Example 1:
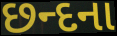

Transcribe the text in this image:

છન્દના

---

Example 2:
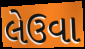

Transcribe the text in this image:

લેઉવા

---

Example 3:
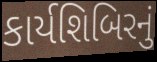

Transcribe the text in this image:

કાર્યશિબિરનું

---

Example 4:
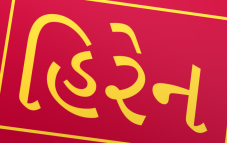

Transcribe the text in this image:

હિરેન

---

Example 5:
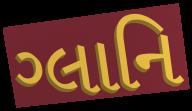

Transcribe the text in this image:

ગ્લાનિ